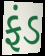
ફંડ